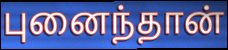
புனைந்தான்